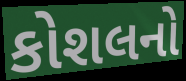
કોશલનો